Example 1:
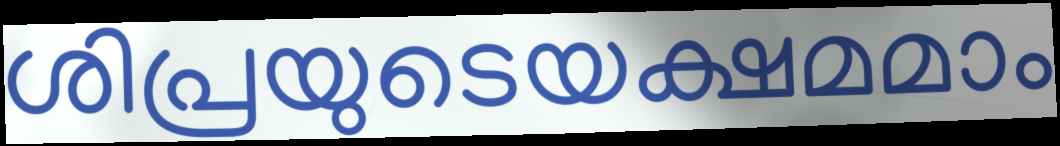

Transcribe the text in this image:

ശിപ്രയുടെയക്ഷമമാം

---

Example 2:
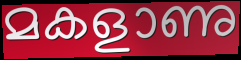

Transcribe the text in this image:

മകളാണു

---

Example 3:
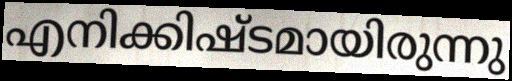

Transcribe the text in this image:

എനിക്കിഷ്ടമായിരുന്നു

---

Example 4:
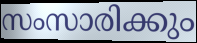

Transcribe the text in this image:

സംസാരിക്കും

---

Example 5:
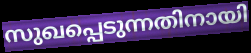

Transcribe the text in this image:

സുഖപ്പെടുന്നതിനായി